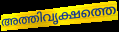
അത്തിവൃക്ഷത്തെ